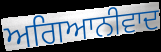
ਅਗਿਆਨੀਵਾਦ